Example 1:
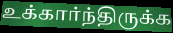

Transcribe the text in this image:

உக்கார்ந்திருக்க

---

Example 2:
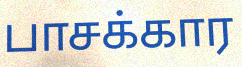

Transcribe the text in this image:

பாசக்கார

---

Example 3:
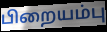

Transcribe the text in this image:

பிறையம்பு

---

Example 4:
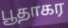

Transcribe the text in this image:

பூதாகர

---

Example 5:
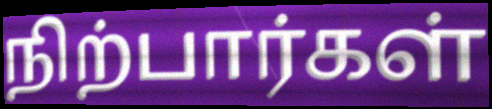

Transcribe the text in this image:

நிற்பார்கள்